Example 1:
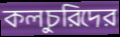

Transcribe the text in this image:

কলচুরিদের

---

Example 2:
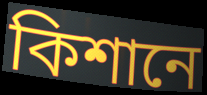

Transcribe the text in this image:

কিশানে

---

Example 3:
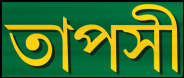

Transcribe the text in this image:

তাপসী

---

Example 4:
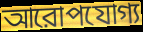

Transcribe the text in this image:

আরোপযোগ্য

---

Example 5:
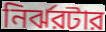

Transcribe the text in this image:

নির্ঝরটার